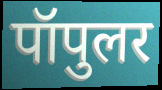
पॉपुलर